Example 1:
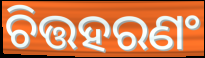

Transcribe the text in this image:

ଚିତ୍ତହରଣଂ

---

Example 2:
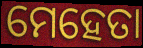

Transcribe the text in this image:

ମେହେତା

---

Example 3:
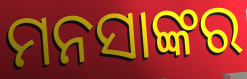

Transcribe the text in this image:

ମନସାଙ୍କର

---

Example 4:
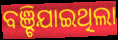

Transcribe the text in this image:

ବଞ୍ଚିଯାଇଥିଲା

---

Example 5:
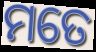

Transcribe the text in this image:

ମତେ